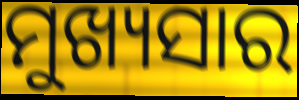
ମୁଖ୍ୟସାର